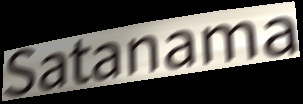
Satanama